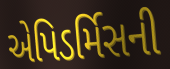
એપિડર્મિસની